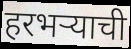
हरभऱ्याची